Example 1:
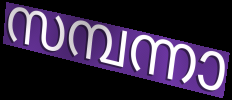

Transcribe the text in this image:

സമ്പന്നാ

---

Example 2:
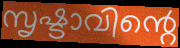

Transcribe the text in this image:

സൃഷ്ടാവിന്റെ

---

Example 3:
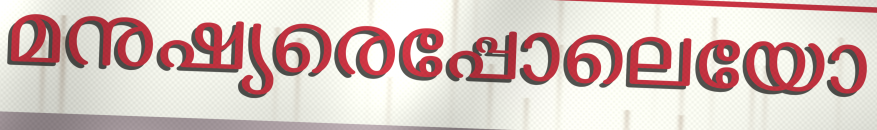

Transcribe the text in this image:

മനുഷ്യരെപ്പോലെയോ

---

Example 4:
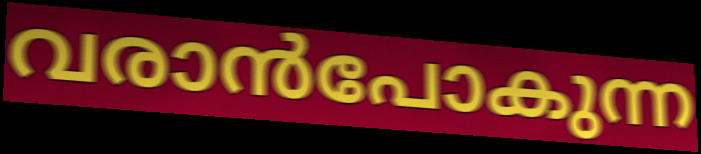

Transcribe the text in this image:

വരാൻപോകുന്ന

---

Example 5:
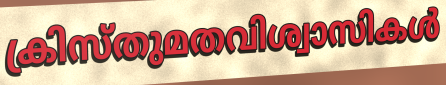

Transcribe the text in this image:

ക്രിസ്തുമതവിശ്വാസികൾ